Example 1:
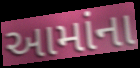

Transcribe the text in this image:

આમાંના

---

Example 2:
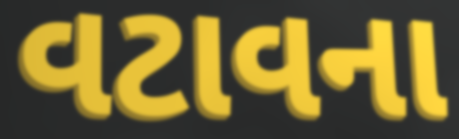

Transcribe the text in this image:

વટાવના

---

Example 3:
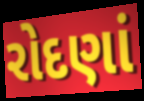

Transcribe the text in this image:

રોદણાં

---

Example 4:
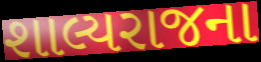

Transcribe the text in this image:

શાલ્યરાજના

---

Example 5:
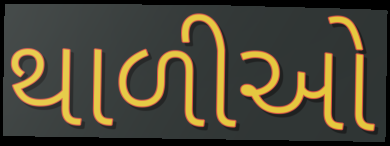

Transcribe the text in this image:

થાળીઓ